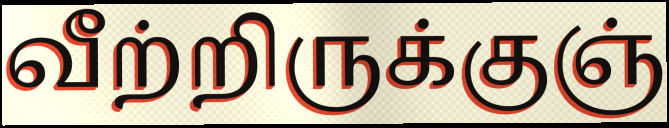
வீற்றிருக்குஞ்